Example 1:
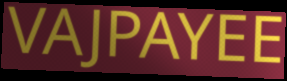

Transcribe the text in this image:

VAJPAYEE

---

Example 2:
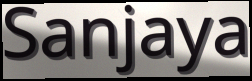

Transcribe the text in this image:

Sanjaya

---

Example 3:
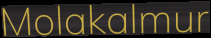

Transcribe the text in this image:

Molakalmur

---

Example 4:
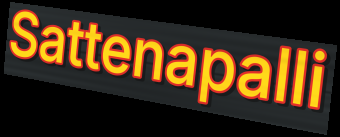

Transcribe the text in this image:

Sattenapalli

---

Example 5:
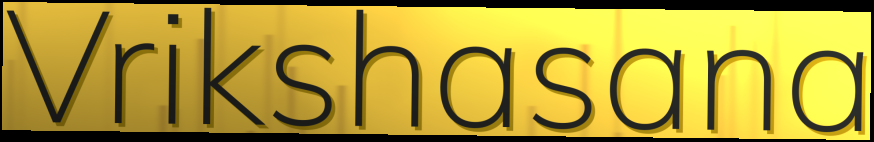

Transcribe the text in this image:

Vrikshasana